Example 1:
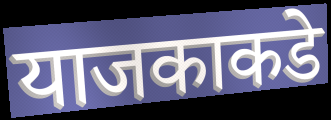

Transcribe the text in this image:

याजकाकडे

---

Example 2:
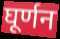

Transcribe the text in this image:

घूर्णन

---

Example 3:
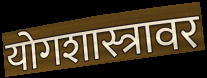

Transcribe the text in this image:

योगशास्त्रावर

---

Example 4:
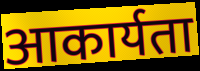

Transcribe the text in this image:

आकार्यता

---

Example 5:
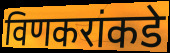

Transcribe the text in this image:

विणकरांकडे